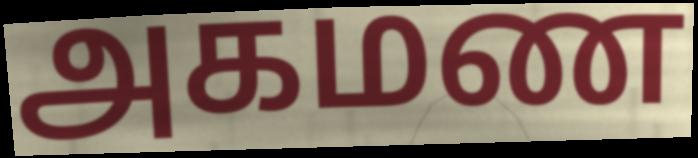
அகமண